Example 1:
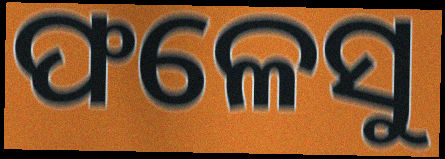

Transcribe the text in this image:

ଫଳେସୁ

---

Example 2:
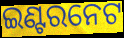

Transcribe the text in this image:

ଇଣ୍ଟରନେଟ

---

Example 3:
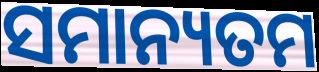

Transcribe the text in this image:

ସମାନ୍ୟତମ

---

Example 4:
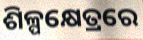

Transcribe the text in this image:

ଶିଳ୍ପକ୍ଷେତ୍ରରେ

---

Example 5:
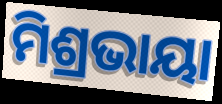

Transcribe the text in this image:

ମିଶ୍ରଭାୟା